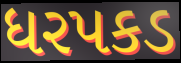
ધરપકડ